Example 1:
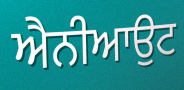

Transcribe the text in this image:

ਐਨੀਆਉਟ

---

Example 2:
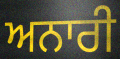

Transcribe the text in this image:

ਅਨਾਰੀ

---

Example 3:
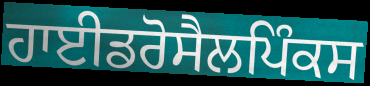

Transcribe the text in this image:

ਹਾਈਡਰੋਸੈਲਪਿੰਕਸ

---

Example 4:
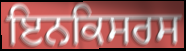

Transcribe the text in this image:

ਇਨਕਿਸਰਸ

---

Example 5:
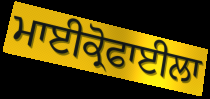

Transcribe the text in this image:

ਮਾਈਕ੍ਰੋਫਾਈਲਾ